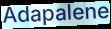
Adapalene